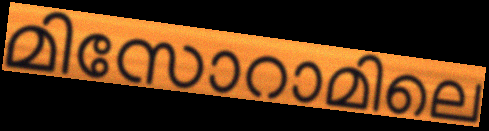
മിസോറാമിലെ